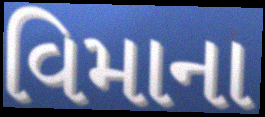
વિમાના